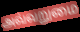
அவ்வறுமை